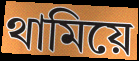
থামিয়ে